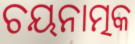
ଚୟନାତ୍ମକ